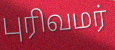
புரிவமர்